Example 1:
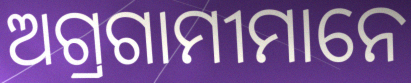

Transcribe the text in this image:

ଅଗ୍ରଗାମୀମାନେ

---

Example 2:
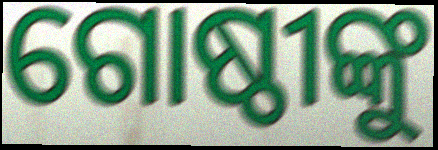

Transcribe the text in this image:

ଗୋଷ୍ଠୀଙ୍କୁ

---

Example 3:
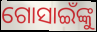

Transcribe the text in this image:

ଗୋସାଇଁଙ୍କୁ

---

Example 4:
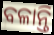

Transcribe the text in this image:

ବଳାନ୍ତି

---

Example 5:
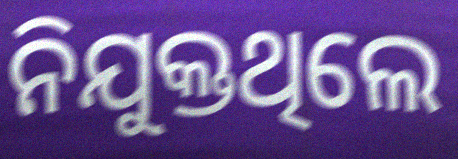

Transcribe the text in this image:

ନିଯୁକ୍ତଥିଲେ